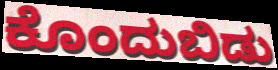
ಕೊಂದುಬಿಡು